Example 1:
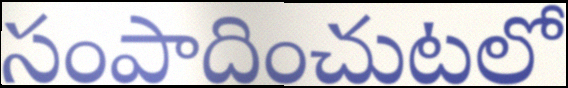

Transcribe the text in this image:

సంపాదించుటలో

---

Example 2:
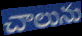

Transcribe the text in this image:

చాలును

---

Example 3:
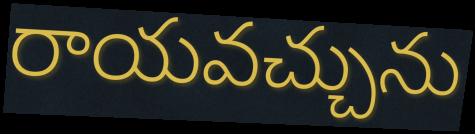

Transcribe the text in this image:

రాయవచ్చును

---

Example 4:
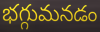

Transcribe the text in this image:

భగ్గుమనడం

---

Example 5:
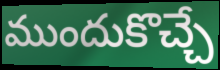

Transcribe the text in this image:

ముందుకొచ్చే